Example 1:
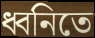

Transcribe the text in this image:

ধ্বনিতে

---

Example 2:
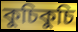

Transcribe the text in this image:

কুচিকুচি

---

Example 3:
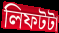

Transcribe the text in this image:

লিফটটা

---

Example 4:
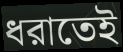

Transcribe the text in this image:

ধরাতেই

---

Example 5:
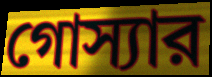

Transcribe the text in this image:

গোস্যার